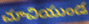
చూచియుండ